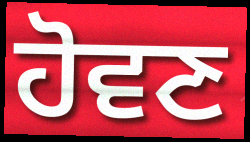
ਹੋਵਣ